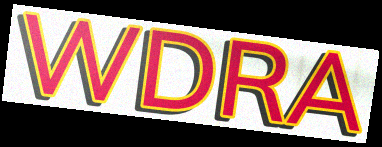
WDRA